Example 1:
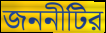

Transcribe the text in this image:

জননীটির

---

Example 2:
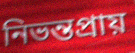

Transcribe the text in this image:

নিভন্তপ্রায়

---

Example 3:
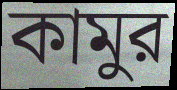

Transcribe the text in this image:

কামুর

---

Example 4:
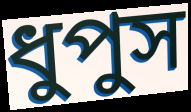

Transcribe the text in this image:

ধুপুস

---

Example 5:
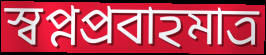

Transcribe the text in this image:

স্বপ্নপ্রবাহমাত্র